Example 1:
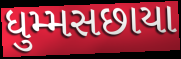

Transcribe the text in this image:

ધુમ્મસછાયા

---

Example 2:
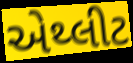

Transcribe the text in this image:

એથ્લીટ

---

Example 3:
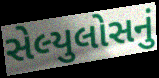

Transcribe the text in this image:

સેલ્યુલોસનું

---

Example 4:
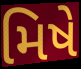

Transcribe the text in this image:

મિષે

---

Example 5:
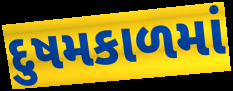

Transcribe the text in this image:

દુષમકાળમાં